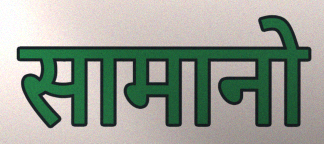
सामानो